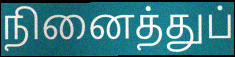
நினைத்துப்